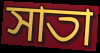
সাতা